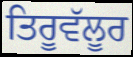
ਤਿਰੂਵੱਲੂਰ